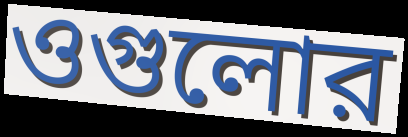
ওগুলোর